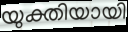
യുക്തിയായി